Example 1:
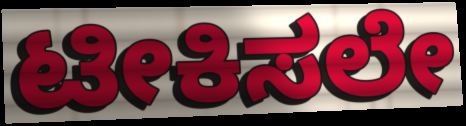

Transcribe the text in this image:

ಟೀಕಿಸಲೇ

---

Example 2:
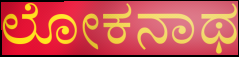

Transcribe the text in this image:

ಲೋಕನಾಥ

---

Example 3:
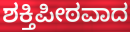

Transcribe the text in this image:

ಶಕ್ತಿಪೀಠವಾದ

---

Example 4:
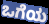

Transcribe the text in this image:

ಒಗೆಯ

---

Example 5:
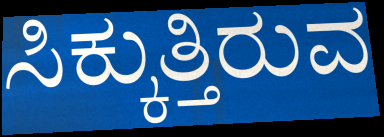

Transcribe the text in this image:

ಸಿಕ್ಕುತ್ತಿರುವ